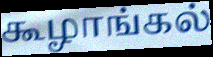
கூழாங்கல்